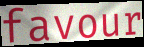
favour